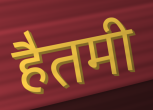
हैतमी